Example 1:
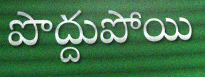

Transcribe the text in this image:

పొద్దుపోయి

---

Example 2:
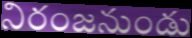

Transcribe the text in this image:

నిరంజనుండు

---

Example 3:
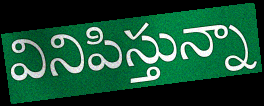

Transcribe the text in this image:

వినిపిస్తున్నా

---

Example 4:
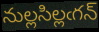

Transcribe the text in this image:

నుల్లసిల్లఁగన్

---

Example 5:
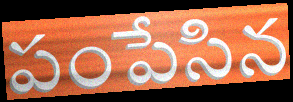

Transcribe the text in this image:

పంపేసిన